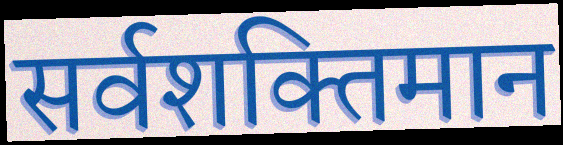
सर्वशक्‍तिमान